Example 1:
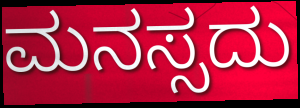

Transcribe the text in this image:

ಮನಸ್ಸದು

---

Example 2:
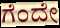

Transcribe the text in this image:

ಗೆಂದೇ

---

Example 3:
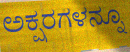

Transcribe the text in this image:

ಅಕ್ಷರಗಳನ್ನೂ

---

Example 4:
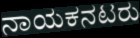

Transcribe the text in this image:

ನಾಯಕನಟರು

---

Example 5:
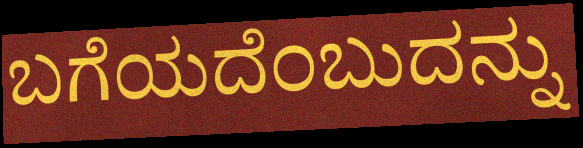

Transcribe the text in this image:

ಬಗೆಯದೆಂಬುದನ್ನು